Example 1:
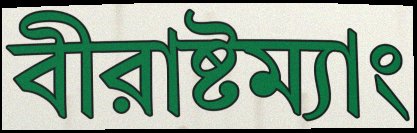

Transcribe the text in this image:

বীরাষ্টম্যাং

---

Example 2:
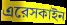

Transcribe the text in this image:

এরেসকাইন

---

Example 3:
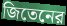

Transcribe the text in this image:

জিতেনের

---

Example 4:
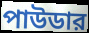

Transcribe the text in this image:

পাউডার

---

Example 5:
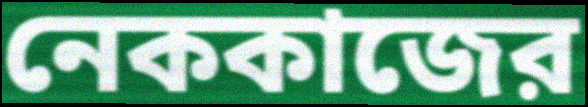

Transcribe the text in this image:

নেককাজের